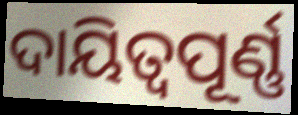
ଦାୟିତ୍ବପୂର୍ଣ୍ଣ